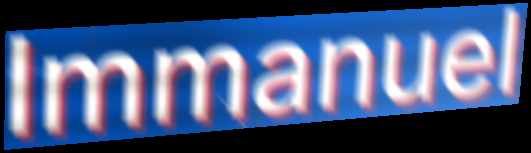
Immanuel